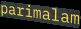
parimalam